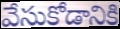
వేసుకోడానికి